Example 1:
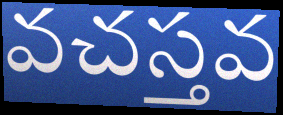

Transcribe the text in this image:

వచస్తవ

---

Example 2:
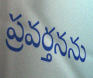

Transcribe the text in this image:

ప్రవర్తనను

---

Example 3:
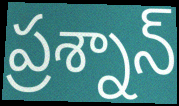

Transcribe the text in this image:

ప్రశ్నాన్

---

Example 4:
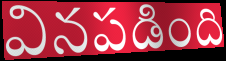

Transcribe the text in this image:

వినపడింది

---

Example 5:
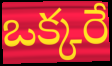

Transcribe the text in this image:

ఒక్కరే